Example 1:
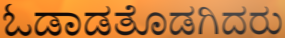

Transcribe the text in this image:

ಓಡಾಡತೊಡಗಿದರು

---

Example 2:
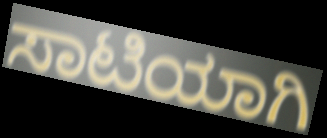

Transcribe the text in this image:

ಸಾಟಿಯಾಗಿ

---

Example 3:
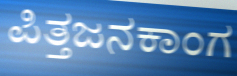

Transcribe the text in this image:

ಪಿತ್ತಜನಕಾಂಗ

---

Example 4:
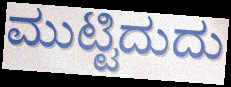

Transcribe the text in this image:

ಮುಟ್ಟಿದುದು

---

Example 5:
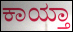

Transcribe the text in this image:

ಕಾಯ್ತಾ